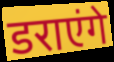
डराएंगे